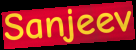
Sanjeev